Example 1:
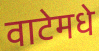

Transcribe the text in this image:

वाटेमधे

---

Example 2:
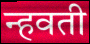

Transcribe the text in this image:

न्हवती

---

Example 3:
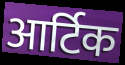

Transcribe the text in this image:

आर्टिक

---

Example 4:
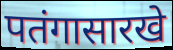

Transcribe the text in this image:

पतंगासारखे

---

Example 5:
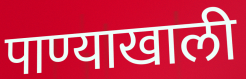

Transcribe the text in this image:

पाण्‍याखाली